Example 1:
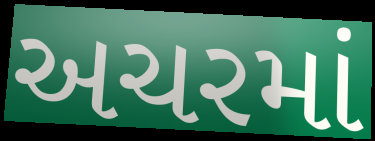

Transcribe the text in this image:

અચરમાં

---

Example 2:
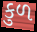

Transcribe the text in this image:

કુળ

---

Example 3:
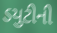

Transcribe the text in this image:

ડયુટીની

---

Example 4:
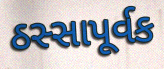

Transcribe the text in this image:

ઠસ્સાપૂર્વક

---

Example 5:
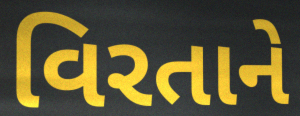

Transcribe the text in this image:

વિરતાને